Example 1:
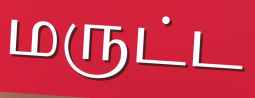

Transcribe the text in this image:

மருட்ட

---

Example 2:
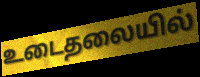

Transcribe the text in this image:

உடைதலையில்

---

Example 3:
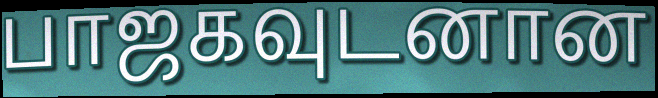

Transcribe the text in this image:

பாஜகவுடனான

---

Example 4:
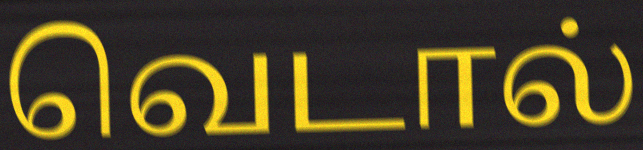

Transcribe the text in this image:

வெடால்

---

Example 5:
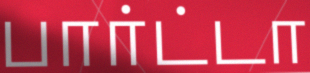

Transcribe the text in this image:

பார்ட்டா